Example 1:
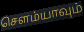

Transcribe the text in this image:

சௌம்யாவும்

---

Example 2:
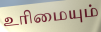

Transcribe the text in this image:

உரிமையும்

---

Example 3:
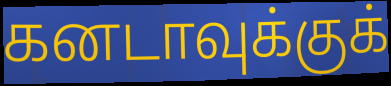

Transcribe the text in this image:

கனடாவுக்குக்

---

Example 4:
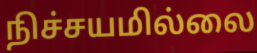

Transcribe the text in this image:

நிச்சயமில்லை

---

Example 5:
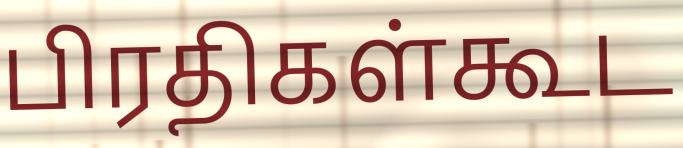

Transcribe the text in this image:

பிரதிகள்கூட